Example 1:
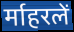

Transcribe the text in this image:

र्माहरलें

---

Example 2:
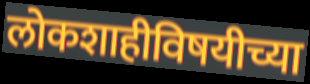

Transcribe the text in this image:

लोकशाहीविषयीच्या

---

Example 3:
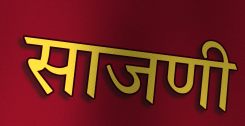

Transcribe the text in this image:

साजणी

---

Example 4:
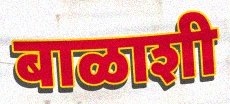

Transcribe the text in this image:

बाळाशी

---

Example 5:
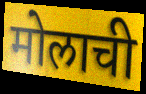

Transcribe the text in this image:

मोलाची